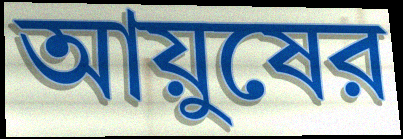
আয়ুষের